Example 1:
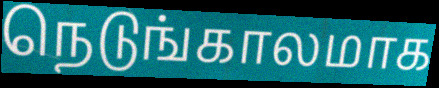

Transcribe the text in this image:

நெடுங்காலமாக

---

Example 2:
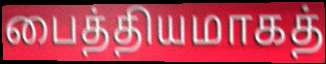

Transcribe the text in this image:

பைத்தியமாகத்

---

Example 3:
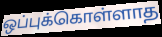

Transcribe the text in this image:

ஒப்புக்கொள்ளாத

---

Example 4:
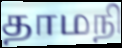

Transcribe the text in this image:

தாமநி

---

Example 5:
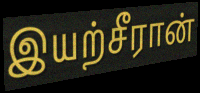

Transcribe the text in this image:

இயற்சீரான்